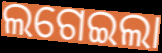
ଲଗେଇଲା